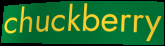
chuckberry